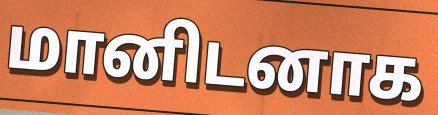
மானிடனாக